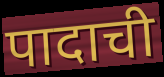
पादाची